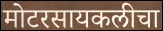
मोटरसायकलीचा